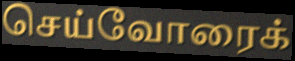
செய்வோரைக்